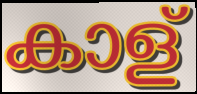
കാള്